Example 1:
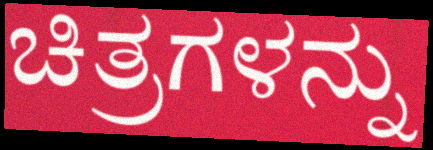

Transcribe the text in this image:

ಚಿತ್ರಗಳನ್ನು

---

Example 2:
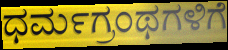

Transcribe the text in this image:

ಧರ್ಮಗ್ರಂಥಗಳಿಗೆ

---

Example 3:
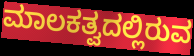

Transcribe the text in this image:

ಮಾಲಕತ್ವದಲ್ಲಿರುವ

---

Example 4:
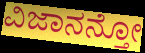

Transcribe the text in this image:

ವಿಜಾನನ್ತೋ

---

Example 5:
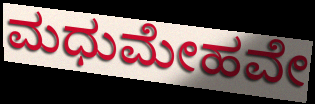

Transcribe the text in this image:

ಮಧುಮೇಹವೇ